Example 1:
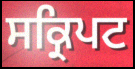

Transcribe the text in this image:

ਸਕ੍ਰਿਪਟ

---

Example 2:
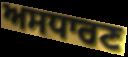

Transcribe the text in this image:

ਅਸਧਾਰਣ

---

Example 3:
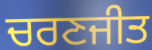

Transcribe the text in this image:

ਚਰਣਜੀਤ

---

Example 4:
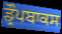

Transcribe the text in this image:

ਡ੍ਰੌਪਬਾਕਸ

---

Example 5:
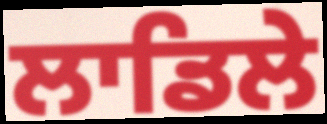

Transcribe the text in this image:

ਲਾਡਿਲੇ